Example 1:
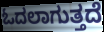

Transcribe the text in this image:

ಓದಲಾಗುತ್ತದೆ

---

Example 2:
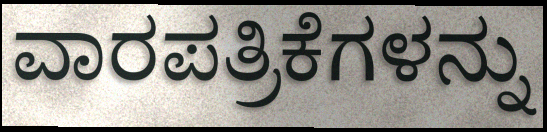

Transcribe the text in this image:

ವಾರಪತ್ರಿಕೆಗಳನ್ನು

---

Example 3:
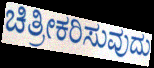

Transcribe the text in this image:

ಚಿತ್ರೀಕರಿಸುವುದು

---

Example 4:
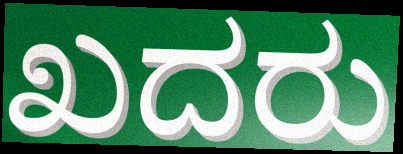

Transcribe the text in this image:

ಖದರು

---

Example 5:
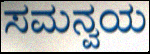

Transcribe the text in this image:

ಸಮನ್ವಯ